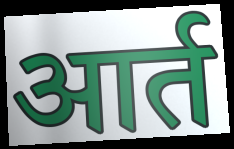
आर्त